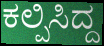
ಕಲ್ಪಿಸಿದ್ದ